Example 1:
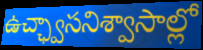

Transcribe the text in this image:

ఉచ్ఛ్వాసనిశ్వాసాల్లో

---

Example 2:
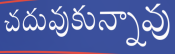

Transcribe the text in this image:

చదువుకున్నావు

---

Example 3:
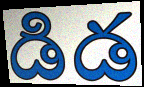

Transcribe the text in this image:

డిడ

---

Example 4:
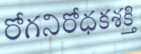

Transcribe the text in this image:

రోగనిరోధకశక్తి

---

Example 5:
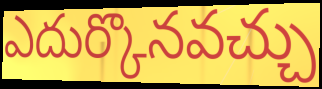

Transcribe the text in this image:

ఎదుర్కొనవచ్చు